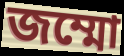
জম্মো